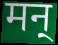
मन्